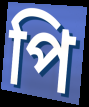
পি